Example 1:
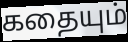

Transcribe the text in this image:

கதையும்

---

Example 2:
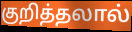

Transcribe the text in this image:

குறித்தலால்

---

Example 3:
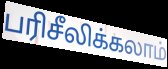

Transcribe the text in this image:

பரிசீலிக்கலாம்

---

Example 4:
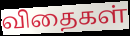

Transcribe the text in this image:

விதைகள்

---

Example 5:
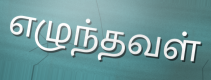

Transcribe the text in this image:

எழுந்தவள்